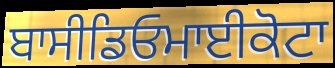
ਬਾਸੀਡਿਓਮਾਈਕੋਟਾ